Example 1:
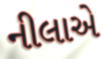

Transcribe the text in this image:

નીલાએ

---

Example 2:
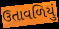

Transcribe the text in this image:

ઉતાવળિયું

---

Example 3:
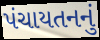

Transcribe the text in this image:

પંચાયતનનું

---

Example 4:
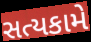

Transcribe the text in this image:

સત્યકામે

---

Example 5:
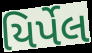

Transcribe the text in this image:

યિર્પેલ